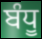
ਬੰਧੂ